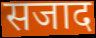
सजाद